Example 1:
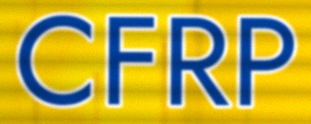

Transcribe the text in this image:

CFRP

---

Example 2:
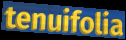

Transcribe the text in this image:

tenuifolia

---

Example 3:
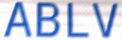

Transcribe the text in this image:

ABLV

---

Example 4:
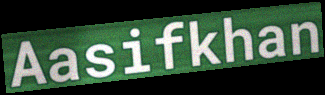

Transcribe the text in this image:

Aasifkhan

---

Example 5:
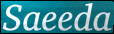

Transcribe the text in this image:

Saeeda